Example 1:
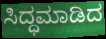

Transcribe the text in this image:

ಸಿದ್ಧಮಾಡಿದ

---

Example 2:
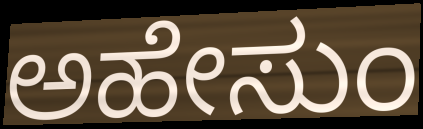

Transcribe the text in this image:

ಅಹೇಸುಂ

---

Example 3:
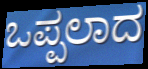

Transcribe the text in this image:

ಒಪ್ಪಲಾದ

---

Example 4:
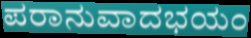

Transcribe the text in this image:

ಪರಾನುವಾದಭಯಂ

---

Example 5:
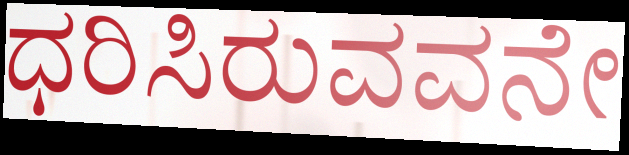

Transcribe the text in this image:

ಧರಿಸಿರುವವನೇ